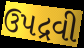
ઉપદ્રવી